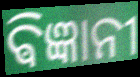
ଵିଜ୍ଞାନୀ